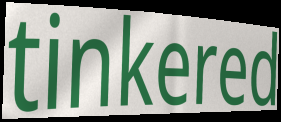
tinkered